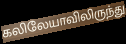
கலிலேயாவிலிருந்து